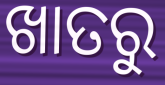
ଖାତରୁ